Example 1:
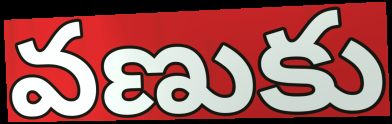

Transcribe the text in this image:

వణుకు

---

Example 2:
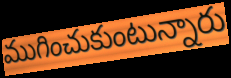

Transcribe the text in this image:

ముగించుకుంటున్నారు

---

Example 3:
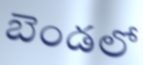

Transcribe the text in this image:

బెండలో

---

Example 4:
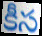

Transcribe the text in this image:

కీస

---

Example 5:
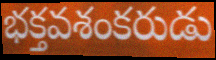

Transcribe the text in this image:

భక్తవశంకరుడు